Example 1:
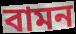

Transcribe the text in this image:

বামন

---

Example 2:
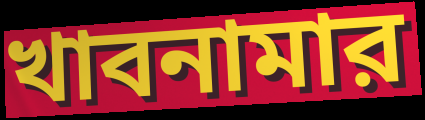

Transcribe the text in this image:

খাবনামার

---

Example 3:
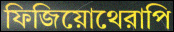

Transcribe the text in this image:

ফিজিয়োথেরাপি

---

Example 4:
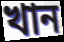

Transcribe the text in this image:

খান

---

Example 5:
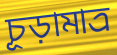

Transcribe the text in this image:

চূড়ামাত্র